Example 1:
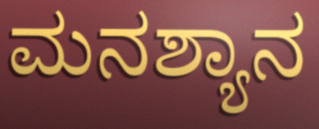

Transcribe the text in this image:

ಮನಶ್ಯಾನ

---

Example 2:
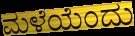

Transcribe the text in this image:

ಮಳೆಯೆಂದು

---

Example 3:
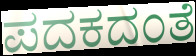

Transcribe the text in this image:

ಪದಕದಂತೆ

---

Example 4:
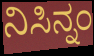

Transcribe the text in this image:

ನಿಸಿನ್ನಂ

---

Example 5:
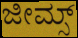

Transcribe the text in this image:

ಜೀಮ್ಸ್